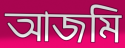
আজমি